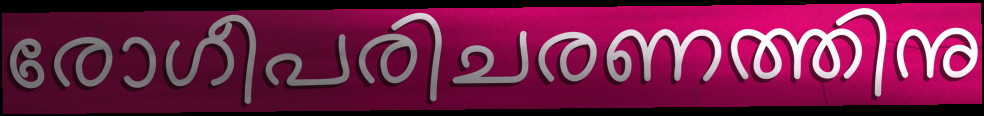
രോഗീപരിചരണത്തിനു